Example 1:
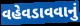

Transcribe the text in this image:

વહેવડાવવાનું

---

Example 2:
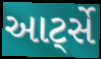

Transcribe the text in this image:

આર્ટ્સે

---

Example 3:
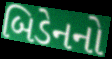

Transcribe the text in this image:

બિડેનનો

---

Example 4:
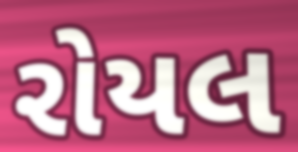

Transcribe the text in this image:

રોયલ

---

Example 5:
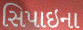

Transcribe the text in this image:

સિપાઇના